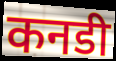
कनडी